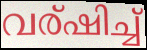
വര്ഷിച്ച്